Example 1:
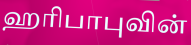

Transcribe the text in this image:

ஹரிபாபுவின்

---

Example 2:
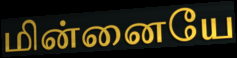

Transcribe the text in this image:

மின்னையே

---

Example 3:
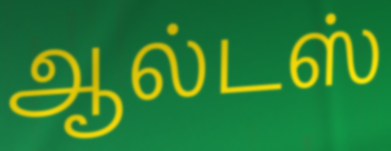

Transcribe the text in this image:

ஆல்டஸ்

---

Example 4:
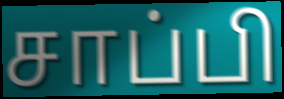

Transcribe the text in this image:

சாப்பி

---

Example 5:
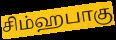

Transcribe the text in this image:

சிம்ஹபாகு